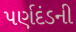
પર્ણદંડની